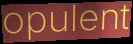
opulent